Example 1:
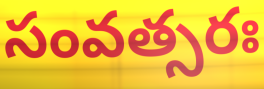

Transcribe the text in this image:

సంవత్సరః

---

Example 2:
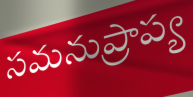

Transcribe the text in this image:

సమనుప్రాప్య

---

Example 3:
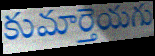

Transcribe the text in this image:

కుమార్తెయగు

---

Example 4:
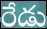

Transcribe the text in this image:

రేడు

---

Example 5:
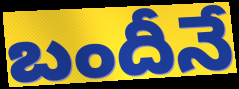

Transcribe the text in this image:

బందీనే